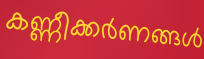
കണ്ണീക്കർണങ്ങൾ